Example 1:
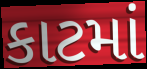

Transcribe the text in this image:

કાટમાં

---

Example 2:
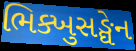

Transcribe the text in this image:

ભિક્ખુસઙ્ઘેન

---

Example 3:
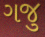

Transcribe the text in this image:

ગજુ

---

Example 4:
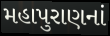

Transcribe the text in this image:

મહાપુરાણનાં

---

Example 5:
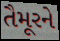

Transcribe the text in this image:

તૈમૂરને